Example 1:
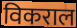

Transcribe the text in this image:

विकराल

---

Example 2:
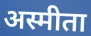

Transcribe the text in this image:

अस्मीता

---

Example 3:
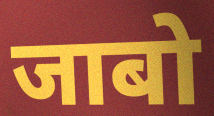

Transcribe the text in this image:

जाबो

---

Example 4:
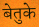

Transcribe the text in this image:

बेतुके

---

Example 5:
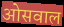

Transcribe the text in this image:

ओसवाल